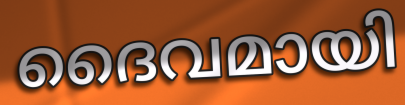
ദൈവമായി